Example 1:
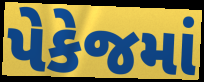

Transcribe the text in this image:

પેકેજમાં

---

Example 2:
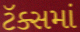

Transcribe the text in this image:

ટૅક્સમાં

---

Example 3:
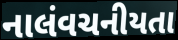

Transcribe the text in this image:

નાલંવચનીયતા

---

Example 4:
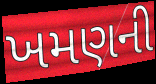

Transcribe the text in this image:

ખમણની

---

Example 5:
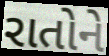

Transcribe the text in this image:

રાતોને